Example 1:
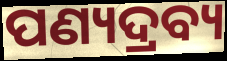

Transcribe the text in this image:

ପଣ୍ୟଦ୍ରବ୍ୟ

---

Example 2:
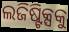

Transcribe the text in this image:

ଲଜିଷ୍ଟିକ୍ସକୁ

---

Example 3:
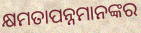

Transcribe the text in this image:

କ୍ଷମତାପନ୍ନମାନଙ୍କର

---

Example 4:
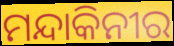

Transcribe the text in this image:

ମନ୍ଦାକିନୀର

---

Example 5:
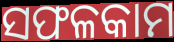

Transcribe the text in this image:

ସଫଳକାମ